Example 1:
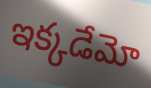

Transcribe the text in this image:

ఇక్కడేమో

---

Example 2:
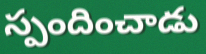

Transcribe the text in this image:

స్పందించాడు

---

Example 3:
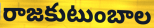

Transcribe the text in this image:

రాజకుటుంబాల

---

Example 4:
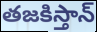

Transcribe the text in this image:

తజకిస్తాన్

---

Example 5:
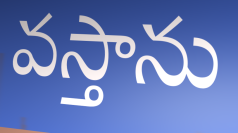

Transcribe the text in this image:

వస్తాను